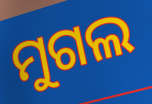
ମୁଗଲ